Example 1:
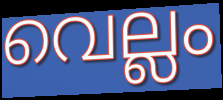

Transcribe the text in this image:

വെല്ലം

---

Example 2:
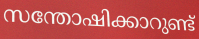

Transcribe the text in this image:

സന്തോഷിക്കാറുണ്ട്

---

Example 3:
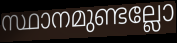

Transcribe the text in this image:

സ്ഥാനമുണ്ടല്ലോ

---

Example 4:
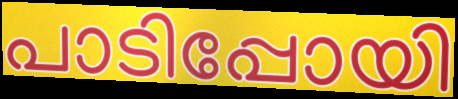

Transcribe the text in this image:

പാടിപ്പോയി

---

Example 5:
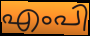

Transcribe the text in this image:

എംപി